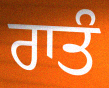
ਰਾਤੰ